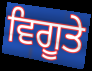
ਵਿਗੂਤੇ